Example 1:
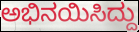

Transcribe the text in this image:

ಅಭಿನಯಿಸಿದ್ದು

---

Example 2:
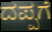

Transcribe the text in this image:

ದಪ್ಪಗೆ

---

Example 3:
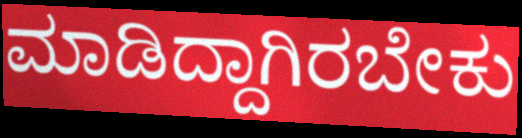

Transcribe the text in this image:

ಮಾಡಿದ್ದಾಗಿರಬೇಕು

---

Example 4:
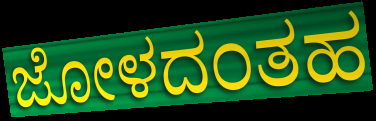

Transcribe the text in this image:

ಜೋಳದಂತಹ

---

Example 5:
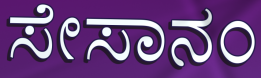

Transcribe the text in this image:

ಸೇಸಾನಂ